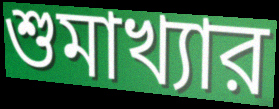
শুমাখ্যার